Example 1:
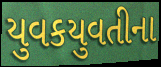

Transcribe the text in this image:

યુવકયુવતીના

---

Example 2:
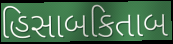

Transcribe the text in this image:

હિસાબકિતાબ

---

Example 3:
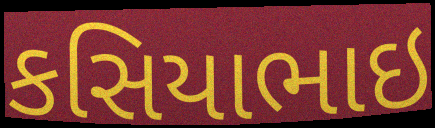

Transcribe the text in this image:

કસિયાભાઇ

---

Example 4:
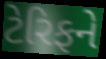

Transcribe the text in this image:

ટેરિફને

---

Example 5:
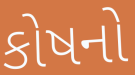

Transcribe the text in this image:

કોષનો